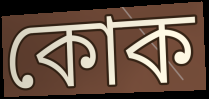
কোক